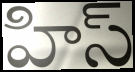
హిస్